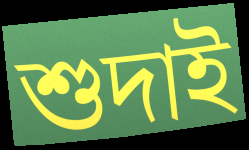
শুদাই